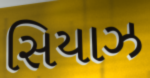
સિયાઝ